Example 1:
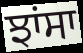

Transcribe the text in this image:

ਝਾਂਸਾ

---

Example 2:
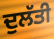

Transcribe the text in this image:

ਦੁਲੱਤੀ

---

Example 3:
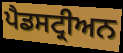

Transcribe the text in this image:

ਪੈਡਸਟ੍ਰੀਅਨ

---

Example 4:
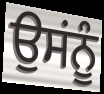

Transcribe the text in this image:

ਉਸਂਨੂੰ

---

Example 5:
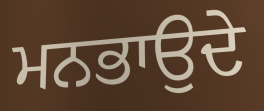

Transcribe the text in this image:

ਮਨਭਾਉਦੇ